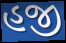
હજી